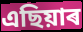
এছিয়াৰ